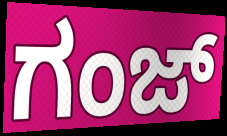
ಗಂಜ್